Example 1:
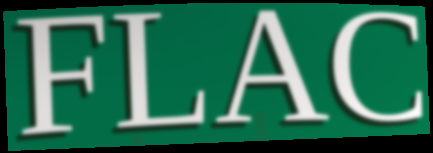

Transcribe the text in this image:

FLAC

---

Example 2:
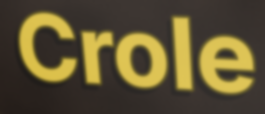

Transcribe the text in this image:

Crole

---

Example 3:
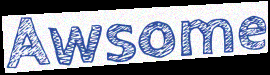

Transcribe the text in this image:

Awsome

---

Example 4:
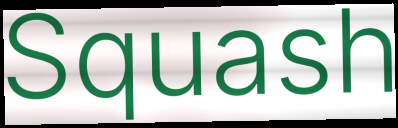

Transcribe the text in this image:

Squash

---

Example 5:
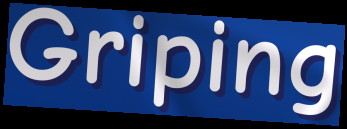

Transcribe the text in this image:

Griping